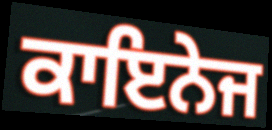
ਕਾਇਨੇਜ